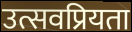
उत्सवप्रियता